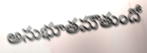
అనుభూతమౌతుందో